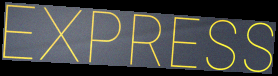
EXPRESS